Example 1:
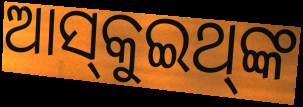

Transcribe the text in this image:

ଆସ୍‌କୁଇଥ୍‌ଙ୍କ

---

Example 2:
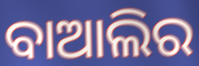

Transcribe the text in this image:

ବାଆଲିର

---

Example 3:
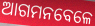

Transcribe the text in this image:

ଆଗମନବେଳେ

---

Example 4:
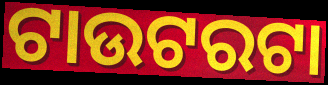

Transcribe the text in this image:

ଟାଉଟରଟା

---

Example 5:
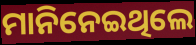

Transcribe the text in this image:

ମାନିନେଇଥିଲେ